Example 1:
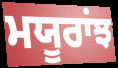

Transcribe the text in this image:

ਮਯੂਰਾਂਝ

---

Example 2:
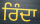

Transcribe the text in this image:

ਰਿੰਦਾ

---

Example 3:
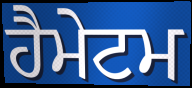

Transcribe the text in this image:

ਹੈਮੇਟਮ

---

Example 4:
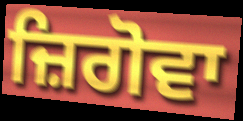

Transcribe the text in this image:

ਜ਼ਿਗੋਵਾ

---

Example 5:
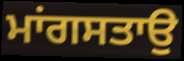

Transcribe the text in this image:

ਮਾਂਗਸਤਾਉ